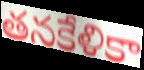
తనకేళికా